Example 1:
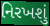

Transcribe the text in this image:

નિરખશું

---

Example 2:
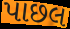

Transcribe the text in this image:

પાછલ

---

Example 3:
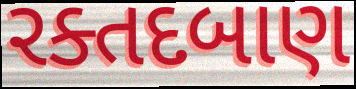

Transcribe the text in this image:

રક્તદબાણ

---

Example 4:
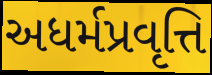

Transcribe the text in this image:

અધર્મપ્રવૃત્તિ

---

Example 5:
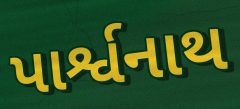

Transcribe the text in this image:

પાર્શ્વનાથ